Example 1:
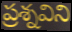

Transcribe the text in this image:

ప్రశ్నవిని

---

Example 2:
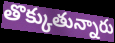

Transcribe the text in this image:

తొక్కుతున్నారు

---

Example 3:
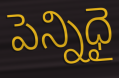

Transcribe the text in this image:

పెన్నిధై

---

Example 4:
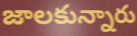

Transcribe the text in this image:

జాలకున్నారు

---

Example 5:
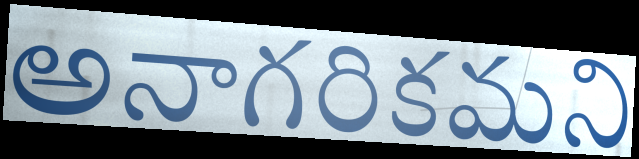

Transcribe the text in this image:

అనాగరికమని